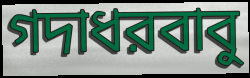
গদাধরবাবু